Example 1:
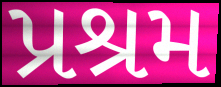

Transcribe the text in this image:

પ્રશ્રમ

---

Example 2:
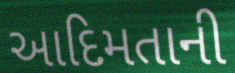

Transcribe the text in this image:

આદિમતાની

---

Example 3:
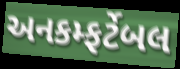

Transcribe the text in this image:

અનકમ્ફર્ટેબલ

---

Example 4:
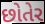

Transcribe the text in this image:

છોતેર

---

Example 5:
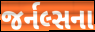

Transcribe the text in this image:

જર્નલ્સના